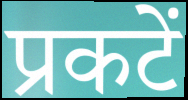
प्रकटें